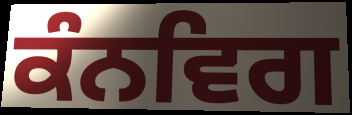
ਕੰਨਵਿਗ